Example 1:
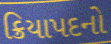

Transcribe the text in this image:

ક્રિયાપદનો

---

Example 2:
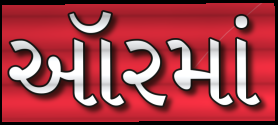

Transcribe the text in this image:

ઑરમાં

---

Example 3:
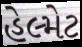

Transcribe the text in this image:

હેલ્મેટ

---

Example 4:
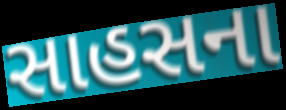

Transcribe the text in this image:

સાહસના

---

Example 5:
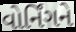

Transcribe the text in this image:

વોર્નિંગને